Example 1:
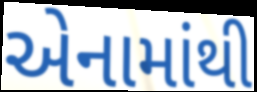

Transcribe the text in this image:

એનામાંથી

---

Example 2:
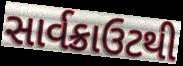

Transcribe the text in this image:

સાર્વક્રાઉટથી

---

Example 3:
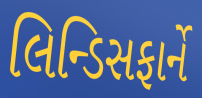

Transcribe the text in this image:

લિન્ડિસફાર્ને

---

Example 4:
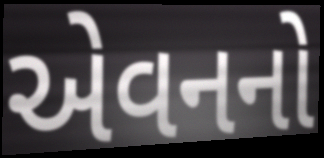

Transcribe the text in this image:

એવનનો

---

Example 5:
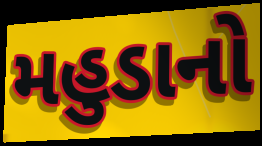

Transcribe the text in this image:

મહુડાનો